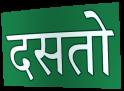
दसतो